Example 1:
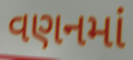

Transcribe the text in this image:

વણનમાં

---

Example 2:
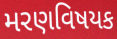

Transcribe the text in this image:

મરણવિષયક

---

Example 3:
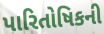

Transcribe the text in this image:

પારિતોષિકની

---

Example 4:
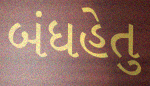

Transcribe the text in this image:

બંધહેતુ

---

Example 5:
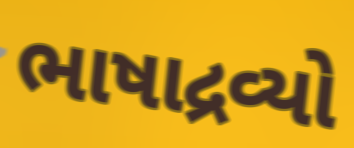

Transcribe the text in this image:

ભાષાદ્રવ્યો